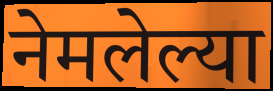
नेमलेल्या